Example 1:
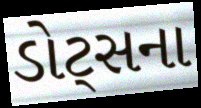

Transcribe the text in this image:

ડોટ્સના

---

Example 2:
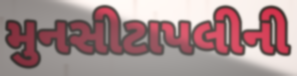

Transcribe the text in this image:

મુનસીટાપલીની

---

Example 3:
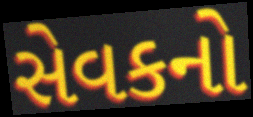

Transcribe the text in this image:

સેવકનો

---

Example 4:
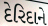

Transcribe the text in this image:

દેરિદાને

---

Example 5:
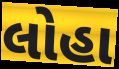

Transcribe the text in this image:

લોહા